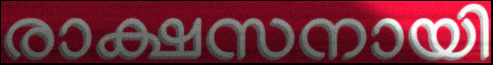
രാക്ഷസനായി